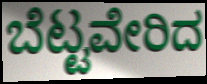
ಬೆಟ್ಟವೇರಿದ